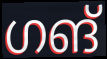
ഗങ്